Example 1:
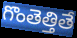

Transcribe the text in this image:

గొంతెత్తితే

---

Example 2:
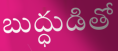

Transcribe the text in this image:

బుద్ధుడితో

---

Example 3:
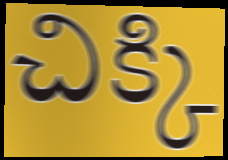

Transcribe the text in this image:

చిక్కి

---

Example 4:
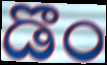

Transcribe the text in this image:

డొం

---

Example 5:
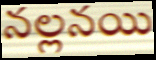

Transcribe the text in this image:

నల్లనయి